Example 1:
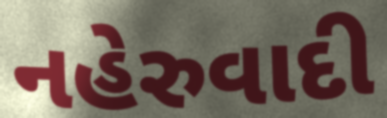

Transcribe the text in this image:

નહેરુવાદી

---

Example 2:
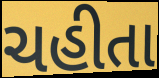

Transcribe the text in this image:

ચહીતા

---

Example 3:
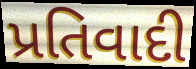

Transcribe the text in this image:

પ્રતિવાદી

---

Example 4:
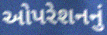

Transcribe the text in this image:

ઓપરેશનનું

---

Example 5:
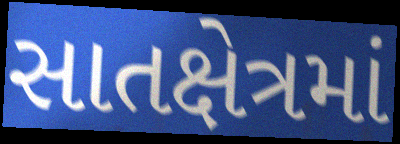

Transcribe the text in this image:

સાતક્ષેત્રમાં